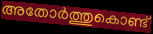
അതോർത്തുകൊണ്ട്